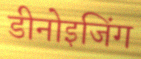
डीनोइजिंग